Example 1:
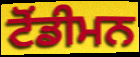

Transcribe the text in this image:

ਟੋਂਡੀਮਨ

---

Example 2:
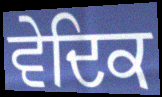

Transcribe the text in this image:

ਵੇਦਿਕ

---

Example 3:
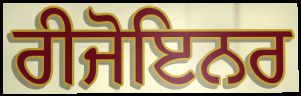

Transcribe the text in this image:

ਰੀਜੋਇਨਰ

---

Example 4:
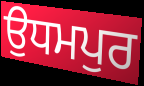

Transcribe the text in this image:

ਉਧਮਪੁਰ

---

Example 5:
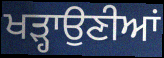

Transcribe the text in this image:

ਖੜ੍ਹਾਉਣੀਆਂ